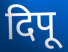
दिपू